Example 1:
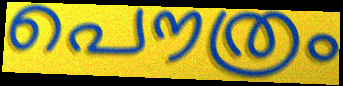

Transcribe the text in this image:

പൌത്രം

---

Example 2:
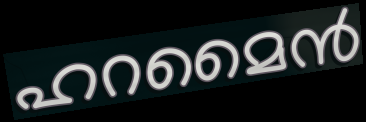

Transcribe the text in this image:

ഹറമൈൻ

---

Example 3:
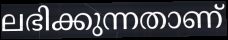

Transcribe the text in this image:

ലഭിക്കുന്നതാണ്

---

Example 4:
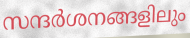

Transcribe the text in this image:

സന്ദർശനങ്ങളിലും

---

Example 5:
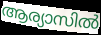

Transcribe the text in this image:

ആര്യാസിൽ